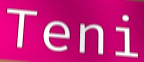
Teni